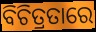
ବିଚିତ୍ରତାରେ